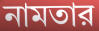
নামতার